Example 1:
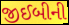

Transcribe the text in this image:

જીઈબીની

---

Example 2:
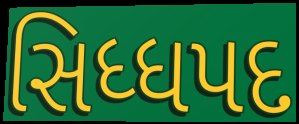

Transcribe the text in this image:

સિધ્ધપદ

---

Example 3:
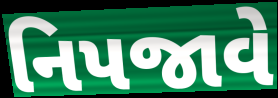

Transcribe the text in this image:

નિપજાવે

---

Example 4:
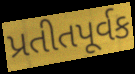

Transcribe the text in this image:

પ્રતીતપૂર્વક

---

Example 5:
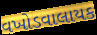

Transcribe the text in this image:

વખોડવાલાયક